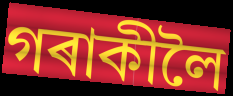
গৰাকীলৈ